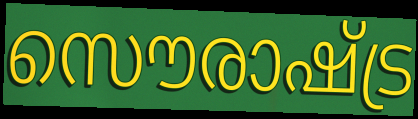
സൌരാഷ്ട്ര